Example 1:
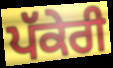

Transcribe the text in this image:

ਪੱਕੇਰੀ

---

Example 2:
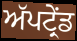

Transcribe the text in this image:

ਅੱਪਟ੍ਰੇਂਡ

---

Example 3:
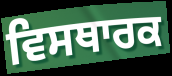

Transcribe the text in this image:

ਵਿਸਥਾਰਕ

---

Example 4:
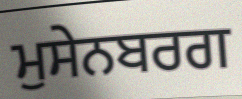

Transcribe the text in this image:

ਮੁਸੇਨਬਰਗ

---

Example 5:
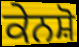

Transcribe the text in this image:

ਕੇਨਸ਼ੋ